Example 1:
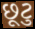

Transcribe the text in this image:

છૂટુ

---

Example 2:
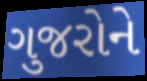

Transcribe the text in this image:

ગુજરોને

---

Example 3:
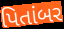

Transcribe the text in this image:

પિતાંબર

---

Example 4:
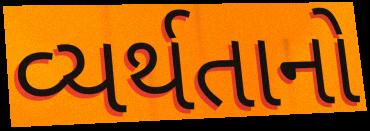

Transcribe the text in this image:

વ્યર્થતાનો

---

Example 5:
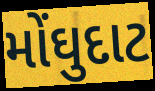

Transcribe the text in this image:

મોંઘુદાટ